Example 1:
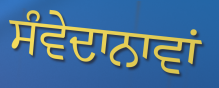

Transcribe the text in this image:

ਸੰਵੇਦਾਨਾਵਾਂ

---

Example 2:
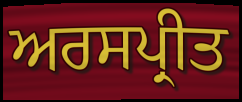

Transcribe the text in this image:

ਅਰਸਪ੍ਰੀਤ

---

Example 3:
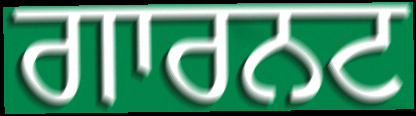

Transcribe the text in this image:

ਗਾਰਨਟ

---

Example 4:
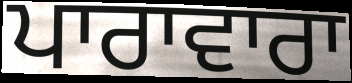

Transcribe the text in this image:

ਪਾਰਾਵਾਰਾ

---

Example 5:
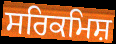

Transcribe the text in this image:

ਸਰਿਕਮਿਸ਼